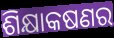
ଶିକ୍ଷାକଷଣର